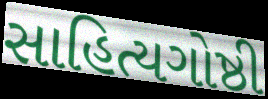
સાહિત્યગોષ્ઠી